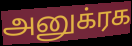
அனுக்ரக